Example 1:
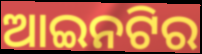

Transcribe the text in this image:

ଆଇନଟିର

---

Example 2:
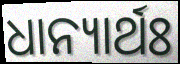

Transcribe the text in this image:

ଧାନ୍ୟାର୍ଥଃ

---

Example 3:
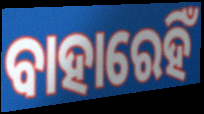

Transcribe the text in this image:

ବାହାରେହିଁ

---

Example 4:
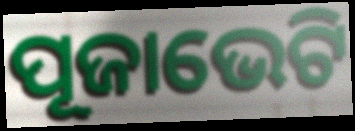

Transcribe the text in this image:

ପୂଜାଭେଟି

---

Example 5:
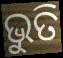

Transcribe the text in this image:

ଭୁତି